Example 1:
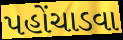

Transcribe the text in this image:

પહોંચાડવા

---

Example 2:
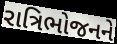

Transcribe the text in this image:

રાત્રિભોજનને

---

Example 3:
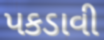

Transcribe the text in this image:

પકડાવી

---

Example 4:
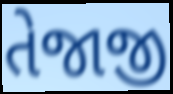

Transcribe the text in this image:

તેજાજી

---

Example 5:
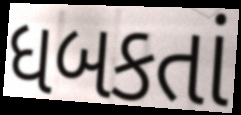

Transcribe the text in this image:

ધબકતાં